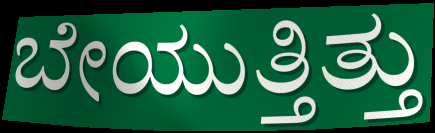
ಬೇಯುತ್ತಿತ್ತು